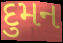
દુમન